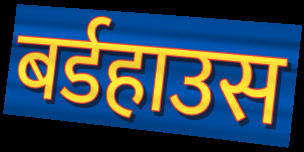
बर्डहाउस